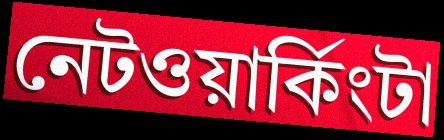
নেটওয়ার্কিংটা